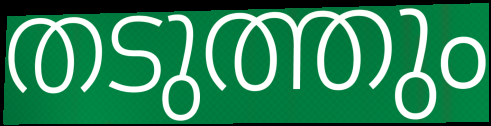
തടുത്തും